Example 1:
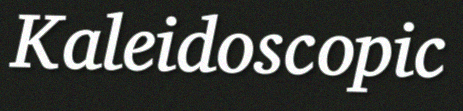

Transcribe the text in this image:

Kaleidoscopic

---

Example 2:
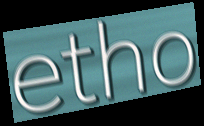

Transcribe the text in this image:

etho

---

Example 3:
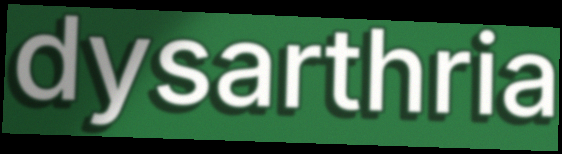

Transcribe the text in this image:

dysarthria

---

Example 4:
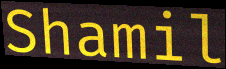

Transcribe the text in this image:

Shamil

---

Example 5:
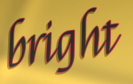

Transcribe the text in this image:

bright